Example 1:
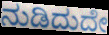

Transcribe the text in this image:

ನುಡಿದುದೇ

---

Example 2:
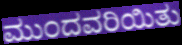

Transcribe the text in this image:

ಮುಂದವರಿಯಿತು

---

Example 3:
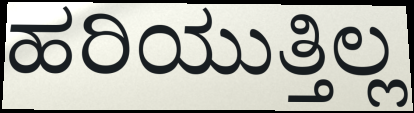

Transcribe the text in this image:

ಹರಿಯುತ್ತಿಲ್ಲ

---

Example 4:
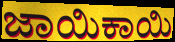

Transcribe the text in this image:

ಜಾಯಿಕಾಯಿ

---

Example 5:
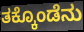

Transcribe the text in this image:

ತಕ್ಕೊಂಡೆನು